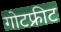
गोटफ्रीट